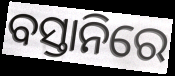
ବସ୍ତାନିରେ